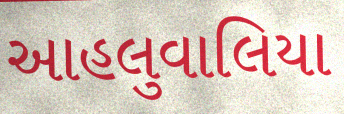
આહલુવાલિયા